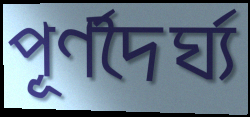
পূর্ণদৈর্ঘ্য